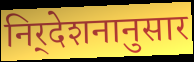
निर्देशनानुसार